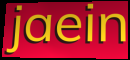
jaein